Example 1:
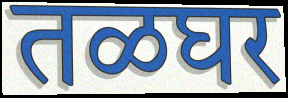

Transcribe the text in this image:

तळघर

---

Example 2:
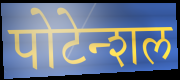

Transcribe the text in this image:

पोटेन्शल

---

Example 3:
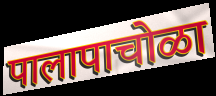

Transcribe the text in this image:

पालापाचोळा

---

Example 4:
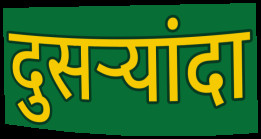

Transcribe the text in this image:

दुसऱ्यांदा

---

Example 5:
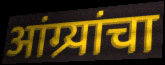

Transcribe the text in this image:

आंग्र्यांचा